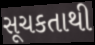
સૂચકતાથી